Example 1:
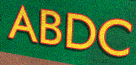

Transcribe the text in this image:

ABDC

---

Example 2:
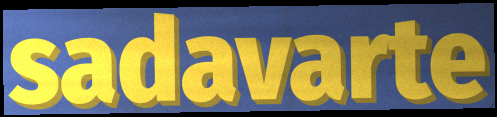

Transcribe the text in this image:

sadavarte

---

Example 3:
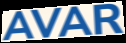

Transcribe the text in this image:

AVAR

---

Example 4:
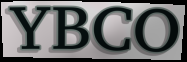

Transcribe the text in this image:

YBCO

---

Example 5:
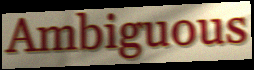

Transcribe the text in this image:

Ambiguous